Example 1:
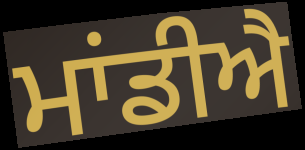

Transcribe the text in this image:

ਮਾਂਡੀਐ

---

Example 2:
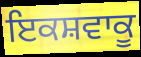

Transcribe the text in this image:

ਇਕਸ਼ਵਾਕੂ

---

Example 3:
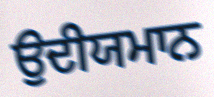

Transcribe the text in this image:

ਉਦੀਯਮਾਨ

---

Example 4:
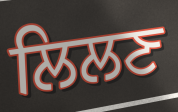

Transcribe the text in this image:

ਲਿਲਣ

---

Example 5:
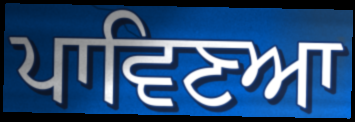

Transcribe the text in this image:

ਪਾਵਿਣਆ